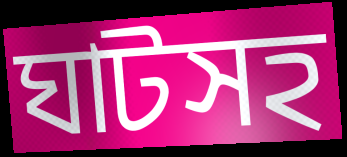
ঘাটসহ